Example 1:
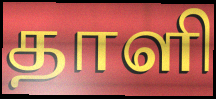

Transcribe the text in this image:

தாளி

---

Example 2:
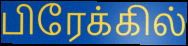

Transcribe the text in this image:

பிரேக்கில்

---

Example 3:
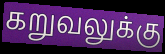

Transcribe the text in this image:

கறுவலுக்கு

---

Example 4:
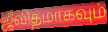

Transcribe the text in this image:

ஜீவிதமாகவும்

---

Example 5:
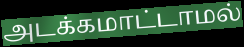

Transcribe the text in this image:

அடக்கமாட்டாமல்